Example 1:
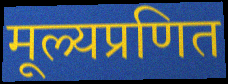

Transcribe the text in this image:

मूल्यप्रणित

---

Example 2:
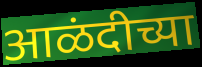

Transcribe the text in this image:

आळंदीच्या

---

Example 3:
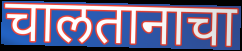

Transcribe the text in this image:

चालतानाचा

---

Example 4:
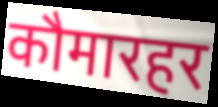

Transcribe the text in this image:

कौमारहर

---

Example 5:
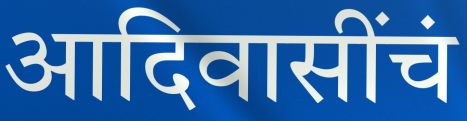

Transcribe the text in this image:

आदिवासींचं